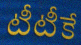
టీటీకే